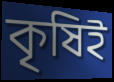
কৃষিই